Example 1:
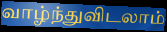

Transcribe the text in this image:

வாழ்ந்துவிடலாம்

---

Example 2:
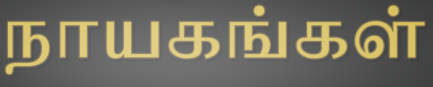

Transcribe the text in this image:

நாயகங்கள்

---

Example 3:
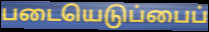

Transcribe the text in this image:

படையெடுப்பைப்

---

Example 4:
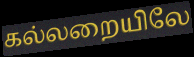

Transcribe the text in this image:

கல்லறையிலே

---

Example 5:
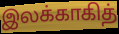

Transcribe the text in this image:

இலக்காகித்